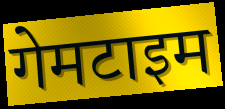
गेमटाइम